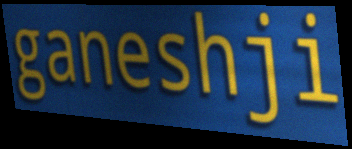
ganeshji